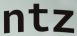
ntz